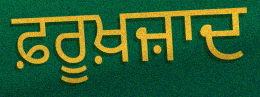
ਫ਼ਰੂਖ਼ਜ਼ਾਦ